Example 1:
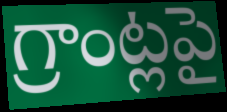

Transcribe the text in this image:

గ్రాంట్లపై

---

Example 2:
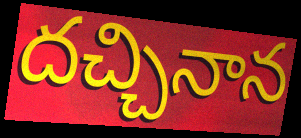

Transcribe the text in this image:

దచ్చినాన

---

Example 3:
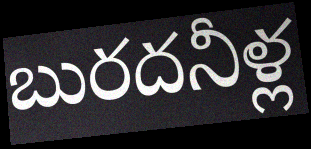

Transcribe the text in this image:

బురదనీళ్ల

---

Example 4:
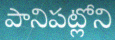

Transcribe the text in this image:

పానిపట్లోని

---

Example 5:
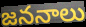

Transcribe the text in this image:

జననాలు